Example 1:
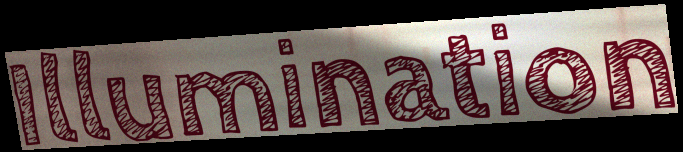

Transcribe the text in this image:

Illumination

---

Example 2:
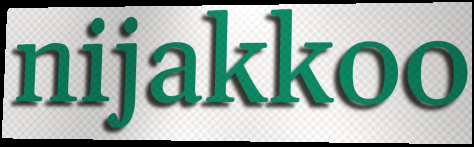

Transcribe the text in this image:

nijakkoo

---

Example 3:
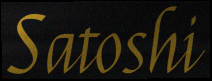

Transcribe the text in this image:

Satoshi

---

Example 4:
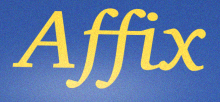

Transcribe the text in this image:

Affix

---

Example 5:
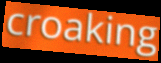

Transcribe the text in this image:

croaking